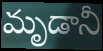
మృడానీ